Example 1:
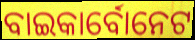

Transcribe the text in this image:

ବାଇକାର୍ବୋନେଟ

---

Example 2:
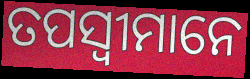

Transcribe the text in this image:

ତପସ୍ୱୀମାନେ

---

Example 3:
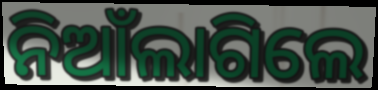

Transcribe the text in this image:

ନିଆଁଲାଗିଲେ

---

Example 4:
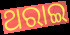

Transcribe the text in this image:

ଥରାଇ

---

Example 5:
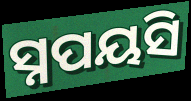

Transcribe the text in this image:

ସ୍ନପୟସି